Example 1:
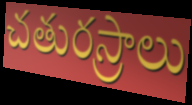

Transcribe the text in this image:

చతురస్రాలు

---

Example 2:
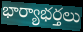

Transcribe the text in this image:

భార్యాభర్తలు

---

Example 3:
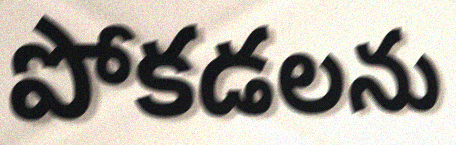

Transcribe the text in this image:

పోకడలను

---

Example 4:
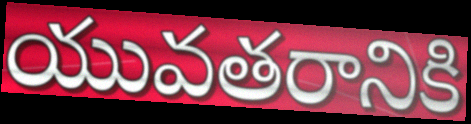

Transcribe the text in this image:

యువతరానికి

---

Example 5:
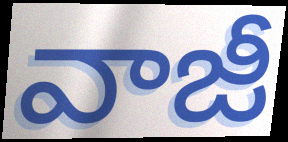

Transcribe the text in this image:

వాజీ